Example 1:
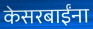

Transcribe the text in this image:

केसरबाईंना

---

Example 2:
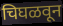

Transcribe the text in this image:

चिघळवून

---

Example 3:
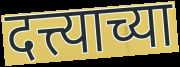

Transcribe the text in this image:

दत्त्याच्या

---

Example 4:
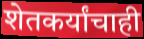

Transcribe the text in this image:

शेतकर्यांचाही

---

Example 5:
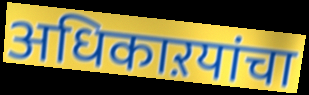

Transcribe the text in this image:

अधिकाऱयांचा